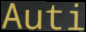
Auti